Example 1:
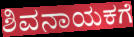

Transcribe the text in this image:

ಶಿವನಾಯಕಗೆ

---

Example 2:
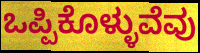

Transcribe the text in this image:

ಒಪ್ಪಿಕೊಳ್ಳುವೆವು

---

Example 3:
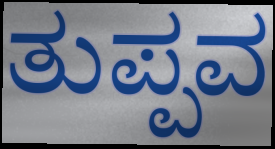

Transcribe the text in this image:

ತುಪ್ಪವ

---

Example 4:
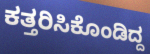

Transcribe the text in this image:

ಕತ್ತರಿಸಿಕೊಂಡಿದ್ದ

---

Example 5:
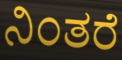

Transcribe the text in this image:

ನಿಂತರೆ